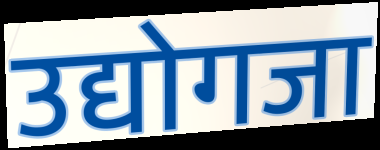
उद्योगजा